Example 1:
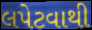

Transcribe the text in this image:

લપેટવાથી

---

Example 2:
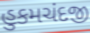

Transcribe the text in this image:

હુકમચંદજી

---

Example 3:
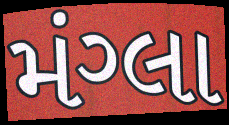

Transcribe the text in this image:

મંગ્લા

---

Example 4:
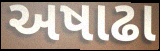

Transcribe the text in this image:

અષાઢા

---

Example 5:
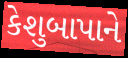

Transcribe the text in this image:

કેશુબાપાને